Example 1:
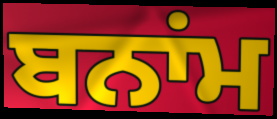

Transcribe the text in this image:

ਬਨਾਂਮ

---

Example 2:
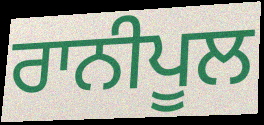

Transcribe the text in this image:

ਰਾਨੀਪੂਲ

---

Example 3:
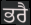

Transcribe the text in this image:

ਭਰੈ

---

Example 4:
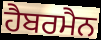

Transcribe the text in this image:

ਹੈਬਰਮੈਨ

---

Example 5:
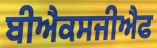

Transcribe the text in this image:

ਬੀਐਕਸਜੀਐਫ